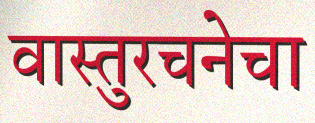
वास्तुरचनेचा